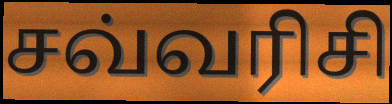
சவ்வரிசி